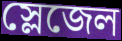
স্লেজেল